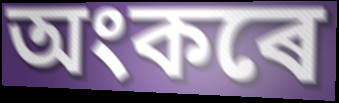
অংকৰে